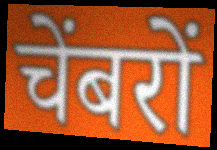
चेंबरों